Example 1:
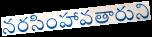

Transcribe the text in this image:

నరసింహావతారుని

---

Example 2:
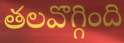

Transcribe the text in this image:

తలవొగ్గింది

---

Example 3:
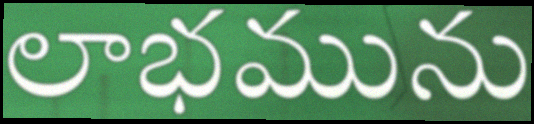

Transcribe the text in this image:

లాభమును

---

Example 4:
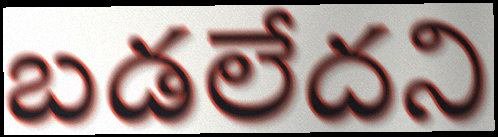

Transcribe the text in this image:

బడలేదని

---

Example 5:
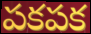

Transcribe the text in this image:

పకపక